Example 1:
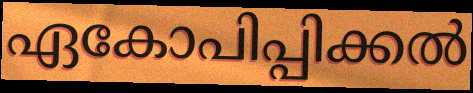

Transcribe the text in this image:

ഏകോപിപ്പിക്കൽ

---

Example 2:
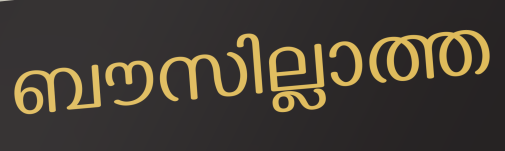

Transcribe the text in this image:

ബൗസില്ലാത്ത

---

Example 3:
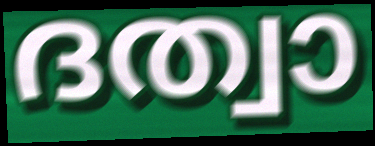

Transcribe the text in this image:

ദത്വാ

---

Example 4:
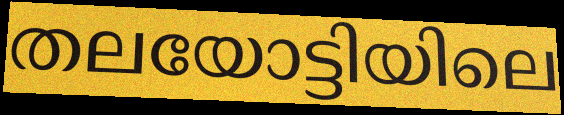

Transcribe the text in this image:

തലയോട്ടിയിലെ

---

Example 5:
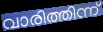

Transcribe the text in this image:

വാരിത്തിന്ന്